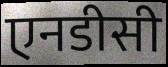
एनडीसी